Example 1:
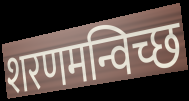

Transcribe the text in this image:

शरणमन्विच्छ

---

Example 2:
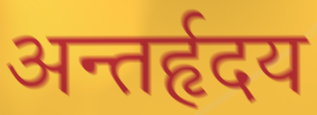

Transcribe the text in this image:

अन्तर्हृदय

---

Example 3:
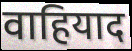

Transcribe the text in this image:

वाहियाद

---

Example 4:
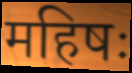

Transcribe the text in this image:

महिषः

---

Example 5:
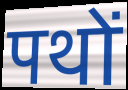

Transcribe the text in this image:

पथों